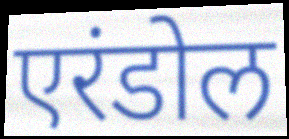
एरंडोल